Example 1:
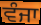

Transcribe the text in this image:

ਵੰਜਾ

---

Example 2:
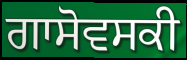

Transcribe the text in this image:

ਗਾਸੋਵਸਕੀ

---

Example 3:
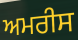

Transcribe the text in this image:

ਅਮਰੀਸ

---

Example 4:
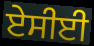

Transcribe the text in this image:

ਏਸੀਈ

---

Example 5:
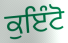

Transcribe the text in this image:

ਕੁਇੰਟੋ